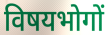
विषयभोगों